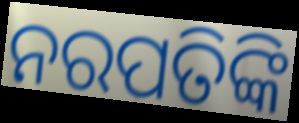
ନରପତିଙ୍କି